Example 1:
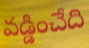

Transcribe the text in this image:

వడ్డించేది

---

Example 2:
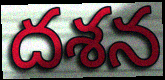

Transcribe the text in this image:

దశన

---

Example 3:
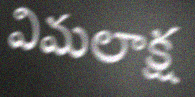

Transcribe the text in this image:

విమలాక్ష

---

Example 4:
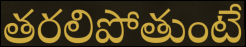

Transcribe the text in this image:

తరలిపోతుంటే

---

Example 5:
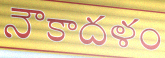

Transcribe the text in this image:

నౌకాదళం